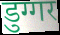
डुग्गर